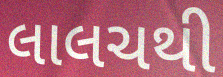
લાલચથી